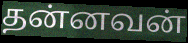
தன்னவன்